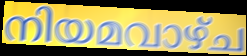
നിയമവാഴ്ച